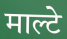
माल्टे